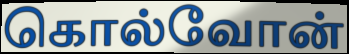
கொல்வோன்